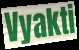
Vyakti